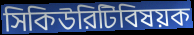
সিকিউরিটিবিষয়ক